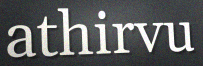
athirvu